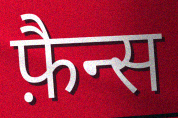
फ़ैन्स